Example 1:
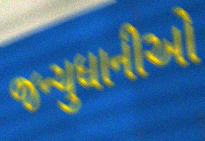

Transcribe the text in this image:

જન્યુધાનીઓ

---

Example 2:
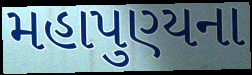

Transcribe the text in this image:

મહાપુણ્યના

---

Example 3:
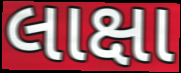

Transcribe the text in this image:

લાક્ષા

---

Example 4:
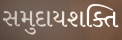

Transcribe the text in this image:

સમુદાયશક્તિ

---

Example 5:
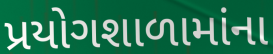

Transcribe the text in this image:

પ્રયોગશાળામાંના